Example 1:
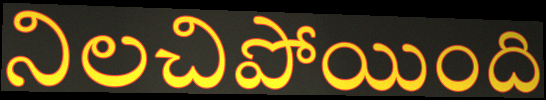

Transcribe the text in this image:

నిలచిపోయింది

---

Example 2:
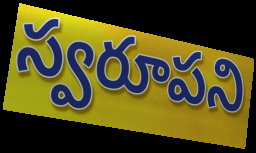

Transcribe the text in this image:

స్వరూపని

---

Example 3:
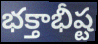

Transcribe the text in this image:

భక్తాభీష్ట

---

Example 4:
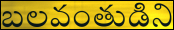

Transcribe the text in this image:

బలవంతుడిని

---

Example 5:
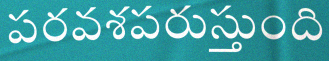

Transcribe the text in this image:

పరవశపరుస్తుంది